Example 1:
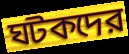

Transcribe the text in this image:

ঘটকদের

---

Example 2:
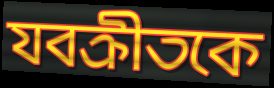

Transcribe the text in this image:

যবক্রীতকে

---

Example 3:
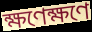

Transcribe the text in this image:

ক্ষণেক্ষণে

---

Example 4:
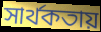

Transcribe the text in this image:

সার্থকতায়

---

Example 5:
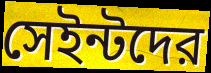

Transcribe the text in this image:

সেইন্টদের